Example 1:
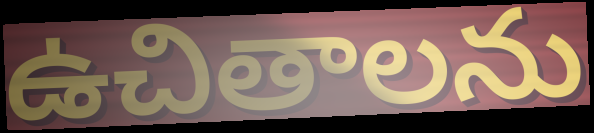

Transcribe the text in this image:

ఉచితాలను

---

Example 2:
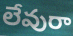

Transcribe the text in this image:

లేవురా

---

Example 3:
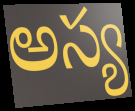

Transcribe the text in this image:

అస్య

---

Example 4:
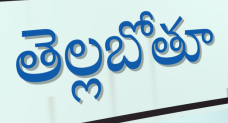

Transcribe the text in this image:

తెల్లబోతూ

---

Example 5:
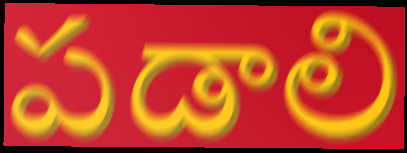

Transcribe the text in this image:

పడాలి